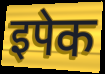
इपेक